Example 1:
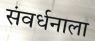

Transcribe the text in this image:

संवर्धनाला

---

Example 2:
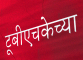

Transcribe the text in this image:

टूबीएचकेच्या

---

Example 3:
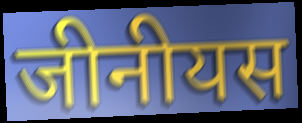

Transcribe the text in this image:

जीनीयस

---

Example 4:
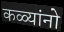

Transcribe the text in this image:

कळ्यांनो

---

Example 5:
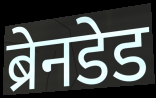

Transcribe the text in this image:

ब्रेनडेड